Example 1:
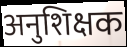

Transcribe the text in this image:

अनुशिक्षक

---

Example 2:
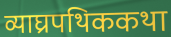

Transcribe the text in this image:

व्याघ्रपथिककथा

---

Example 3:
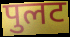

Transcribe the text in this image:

पुलट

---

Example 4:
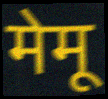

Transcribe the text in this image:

मेमू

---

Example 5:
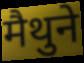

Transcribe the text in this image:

मैथुने